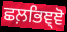
ਛਲ਼ਭਿਞ੍ਞੋ